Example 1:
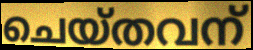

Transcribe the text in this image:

ചെയ്തവന്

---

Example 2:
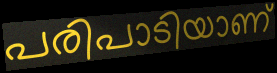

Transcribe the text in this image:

പരിപാടിയാണ്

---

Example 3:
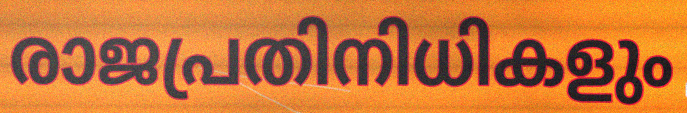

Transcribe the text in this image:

രാജപ്രതിനിധികളും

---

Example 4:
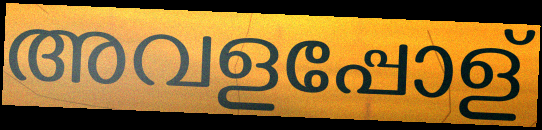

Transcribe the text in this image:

അവളപ്പോള്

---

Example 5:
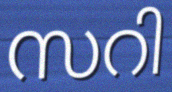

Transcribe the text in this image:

സറി